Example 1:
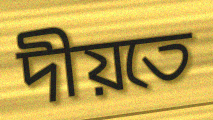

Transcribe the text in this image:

দীয়তে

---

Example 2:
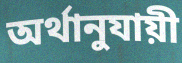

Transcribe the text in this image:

অর্থানুযায়ী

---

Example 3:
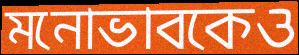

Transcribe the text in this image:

মনোভাবকেও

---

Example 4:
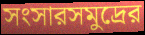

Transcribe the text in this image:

সংসারসমুদ্রের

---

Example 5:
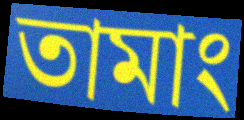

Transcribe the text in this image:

তামাং